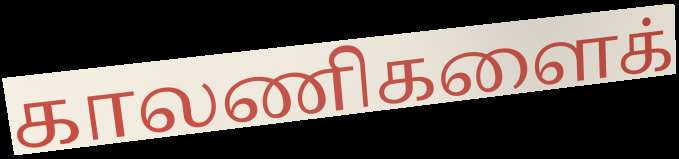
காலணிகளைக்